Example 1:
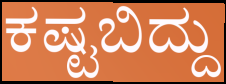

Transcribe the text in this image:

ಕಷ್ಟಬಿದ್ದು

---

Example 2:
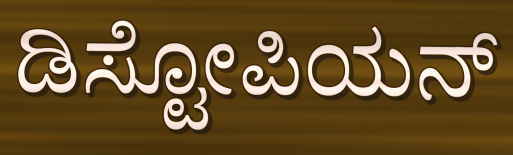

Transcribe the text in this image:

ಡಿಸ್ಟೋಪಿಯನ್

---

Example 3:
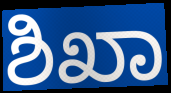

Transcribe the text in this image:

ಶಿಖಾ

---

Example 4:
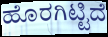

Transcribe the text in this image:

ಹೊರಗಿಟ್ಟಿದೆ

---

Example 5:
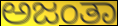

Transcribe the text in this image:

ಅಜಂತಾ